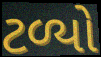
ટળ્યો